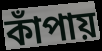
কাঁপায়